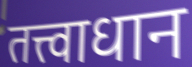
तत्त्वाधान